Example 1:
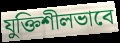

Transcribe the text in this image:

যুক্তিশীলভাবে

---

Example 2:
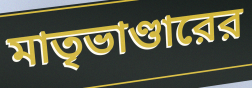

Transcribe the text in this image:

মাতৃভাণ্ডারের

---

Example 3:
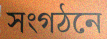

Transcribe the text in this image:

সংগঠনে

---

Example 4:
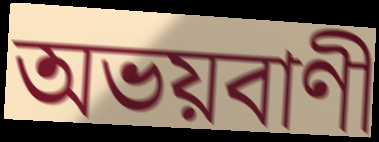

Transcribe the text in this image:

অভয়বাণী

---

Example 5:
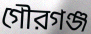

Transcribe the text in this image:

গৌরগঞ্জ